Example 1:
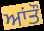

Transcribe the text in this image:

ਆਂਤੌ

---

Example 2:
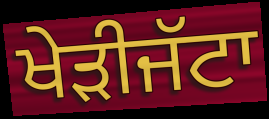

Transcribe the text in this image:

ਖੇੜੀਜੱਟਾ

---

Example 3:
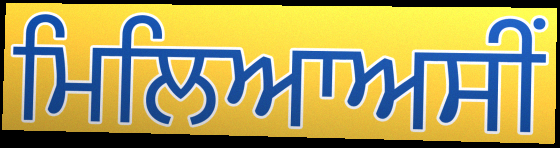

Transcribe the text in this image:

ਮਿਲਿਆਅਸੀਂ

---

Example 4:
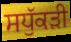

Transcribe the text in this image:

ਸਧੁੱਕੜੀ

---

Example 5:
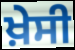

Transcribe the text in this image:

ਖ਼ੇਸੀ